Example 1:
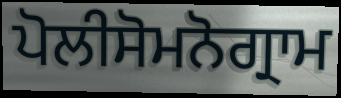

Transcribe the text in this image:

ਪੋਲੀਸੋਮਨੋਗ੍ਰਾਮ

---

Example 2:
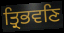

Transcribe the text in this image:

ਤ੍ਰਿਭਵਣਿ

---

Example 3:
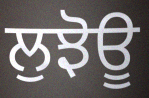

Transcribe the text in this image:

ਲੁਝੋਊ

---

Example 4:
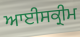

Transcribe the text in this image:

ਆਈਸਕ੍ਰੀਮ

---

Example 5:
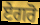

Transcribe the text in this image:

ਏਗਰੋ